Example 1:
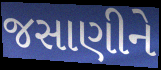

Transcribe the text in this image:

જસાણીને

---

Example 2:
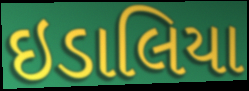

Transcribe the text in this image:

ઇડાલિયા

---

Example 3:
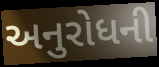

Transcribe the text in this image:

અનુરોધની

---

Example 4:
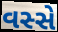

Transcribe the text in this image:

વસ્સે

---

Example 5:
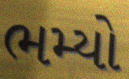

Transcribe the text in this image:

ભમ્યો